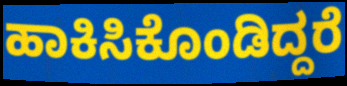
ಹಾಕಿಸಿಕೊಂಡಿದ್ದರೆ